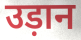
उड़ान